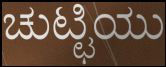
ಚುಟ್ಟಿಯು